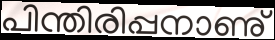
പിന്തിരിപ്പനാണു്